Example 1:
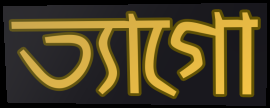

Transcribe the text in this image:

ত্যাগো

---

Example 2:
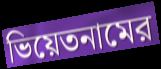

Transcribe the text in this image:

ভিয়েতনামের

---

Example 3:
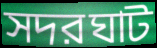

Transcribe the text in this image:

সদরঘাট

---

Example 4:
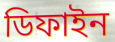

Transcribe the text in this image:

ডিফাইন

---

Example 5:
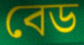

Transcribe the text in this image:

বেড